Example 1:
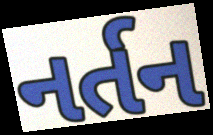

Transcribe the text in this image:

નર્તન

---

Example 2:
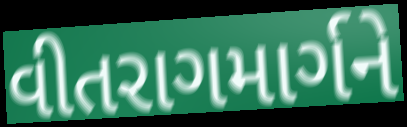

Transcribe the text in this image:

વીતરાગમાર્ગને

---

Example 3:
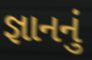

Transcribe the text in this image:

જ્ઞાનનું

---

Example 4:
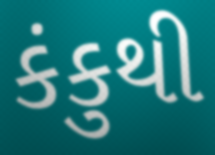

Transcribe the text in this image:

કંકુથી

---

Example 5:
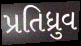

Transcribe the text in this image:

પ્રતિધ્રુવ